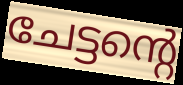
ചേട്ടന്റെ